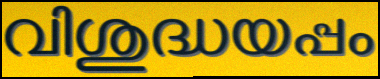
വിശുദ്ധയപ്പം